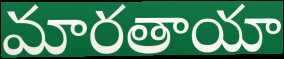
మారతాయా